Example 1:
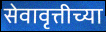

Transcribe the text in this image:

सेवावृत्तीच्या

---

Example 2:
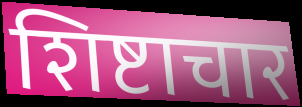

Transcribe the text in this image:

शिष्टाचार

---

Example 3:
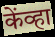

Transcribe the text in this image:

केंव्हा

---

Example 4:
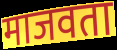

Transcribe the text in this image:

माजवता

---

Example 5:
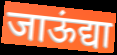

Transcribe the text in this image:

जाऊंद्या